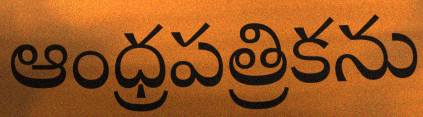
ఆంధ్రపత్రికను